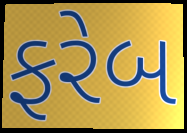
ફરેબ